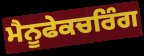
ਮੈਨੂਫੇਕਚਰਿੰਗ